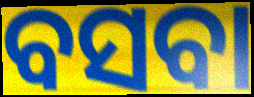
ବସବା